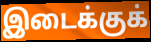
இடைக்குக்